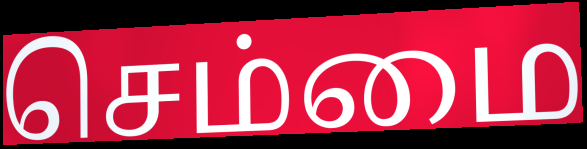
செம்மை